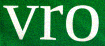
vro